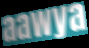
aawya